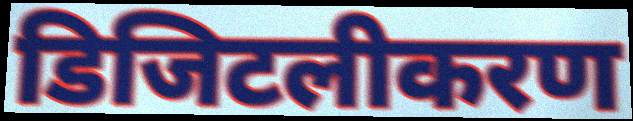
डिजिटलीकरण